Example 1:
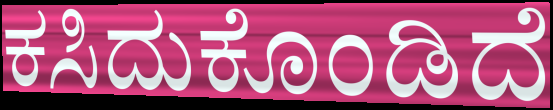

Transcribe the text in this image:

ಕಸಿದುಕೊಂಡಿದೆ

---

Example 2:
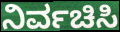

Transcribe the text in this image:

ನಿರ್ವಚಿಸಿ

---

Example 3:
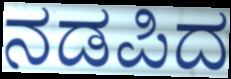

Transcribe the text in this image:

ನಡಪಿದ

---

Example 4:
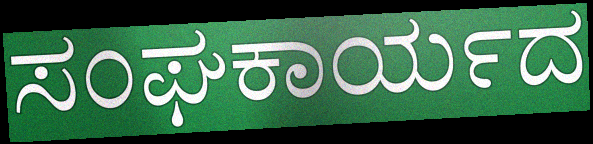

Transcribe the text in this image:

ಸಂಘಕಾರ್ಯದ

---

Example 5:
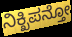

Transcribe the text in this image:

ನಿಕ್ಖಿಪನ್ತೋ